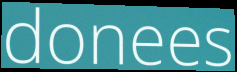
donees